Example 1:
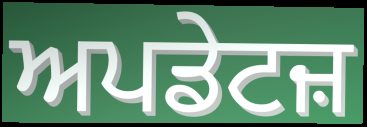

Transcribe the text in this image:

ਅਪਡੇਟਜ਼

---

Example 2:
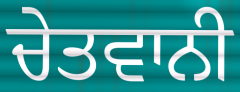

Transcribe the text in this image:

ਚੇਤਵਾਨੀ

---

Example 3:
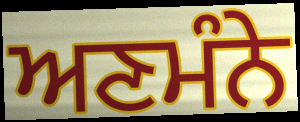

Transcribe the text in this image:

ਅਣਮੰਨੇ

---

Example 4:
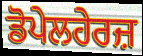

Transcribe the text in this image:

ਡੋਪੇਲਹੇਰਜ਼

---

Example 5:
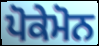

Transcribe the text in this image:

ਪੋਕੇਮੋਨ